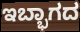
ಇಬ್ಭಾಗದ